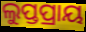
ଲୁପ୍ତପ୍ରାୟ